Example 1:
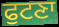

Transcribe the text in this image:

ਫੁਟਣਾ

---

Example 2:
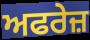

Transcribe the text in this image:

ਅਫਰੇਜ਼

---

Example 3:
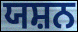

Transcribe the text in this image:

ਯਸ਼ਨ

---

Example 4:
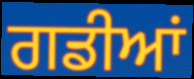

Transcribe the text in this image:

ਗਡੀਆਂ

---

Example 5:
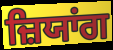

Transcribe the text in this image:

ਜ਼ਿਯਾਂਗ